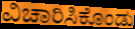
ವಿಚಾರಿಸಿಕೊಂಡು